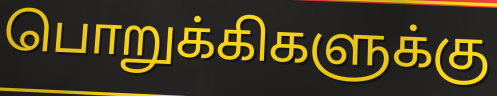
பொறுக்கிகளுக்கு